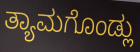
ತ್ಯಾಮಗೊಂಡ್ಲು